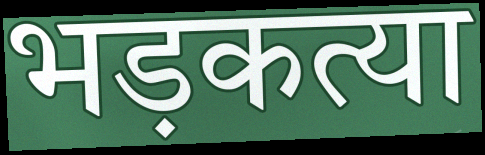
भड़कत्या